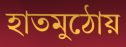
হাতমুঠোয়